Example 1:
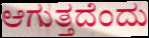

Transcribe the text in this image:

ಆಗುತ್ತದೆಂದು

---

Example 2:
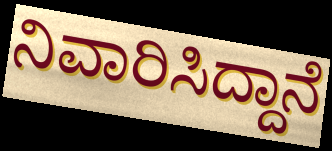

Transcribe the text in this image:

ನಿವಾರಿಸಿದ್ದಾನೆ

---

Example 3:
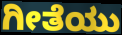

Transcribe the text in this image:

ಗೀತೆಯು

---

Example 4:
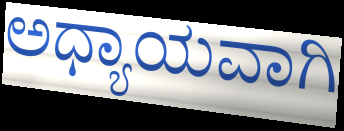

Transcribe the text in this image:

ಅಧ್ಯಾಯವಾಗಿ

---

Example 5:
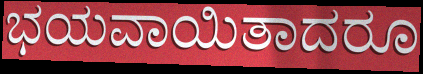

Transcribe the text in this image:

ಭಯವಾಯಿತಾದರೂ